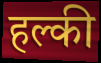
हल्की